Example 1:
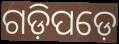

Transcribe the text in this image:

ଗଡ଼ିପଡ଼େ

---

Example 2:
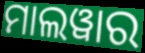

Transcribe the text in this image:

ମାଲୱାର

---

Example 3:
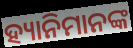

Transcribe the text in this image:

ହ୍ୟାନିମାନଙ୍କ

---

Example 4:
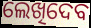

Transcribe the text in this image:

ଲେଖିଦେବ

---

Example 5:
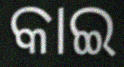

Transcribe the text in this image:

କାଇ